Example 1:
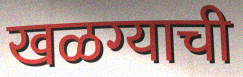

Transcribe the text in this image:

खळग्याची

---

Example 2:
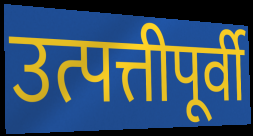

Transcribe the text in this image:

उत्पत्तीपूर्वी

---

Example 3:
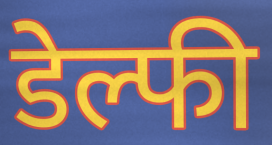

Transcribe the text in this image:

डेल्फी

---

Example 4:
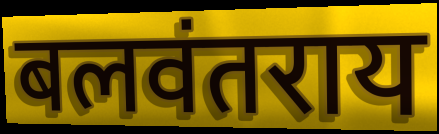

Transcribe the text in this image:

बलवंतराय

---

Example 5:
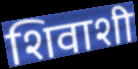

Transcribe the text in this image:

शिवाशी